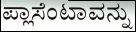
ಪ್ಲಾಸೆಂಟಾವನ್ನು